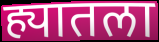
ह्यातला